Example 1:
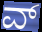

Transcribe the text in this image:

ವ್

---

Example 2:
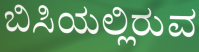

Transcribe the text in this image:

ಬಿಸಿಯಲ್ಲಿರುವ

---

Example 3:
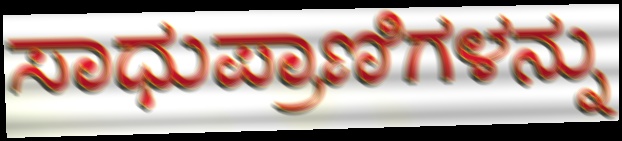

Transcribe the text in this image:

ಸಾಧುಪ್ರಾಣಿಗಳನ್ನು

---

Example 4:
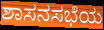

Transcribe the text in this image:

ಶಾಸನಸಭೆಯ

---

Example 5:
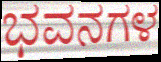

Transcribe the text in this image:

ಭವನಗಳ